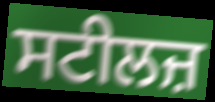
ਸਟੀਲਜ਼